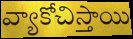
వ్యాకోచిస్తాయి